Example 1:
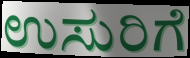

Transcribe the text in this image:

ಉಸುರಿಗೆ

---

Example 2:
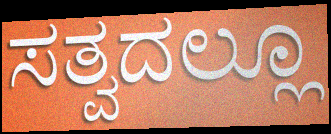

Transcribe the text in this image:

ಸತ್ವದಲ್ಲೂ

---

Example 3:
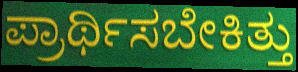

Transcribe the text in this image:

ಪ್ರಾರ್ಥಿಸಬೇಕಿತ್ತು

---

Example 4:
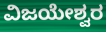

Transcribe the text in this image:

ವಿಜಯೇಶ್ವರ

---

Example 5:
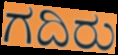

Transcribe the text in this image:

ಗದಿರು